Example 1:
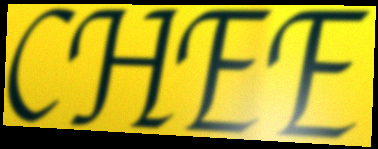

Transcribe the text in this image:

CHEE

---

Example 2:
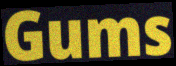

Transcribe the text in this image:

Gums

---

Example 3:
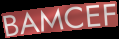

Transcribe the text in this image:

BAMCEF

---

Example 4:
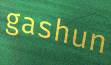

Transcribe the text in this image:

gashun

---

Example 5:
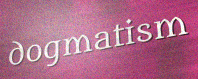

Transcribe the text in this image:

dogmatism